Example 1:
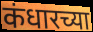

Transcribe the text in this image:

कंधारच्या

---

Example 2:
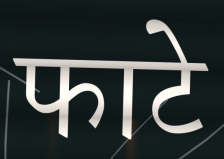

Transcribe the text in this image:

फाटे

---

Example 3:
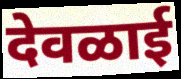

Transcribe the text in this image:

देवळाई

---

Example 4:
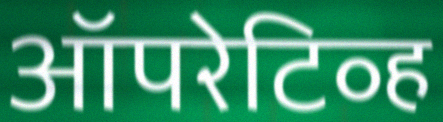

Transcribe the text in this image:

ऑपरेटिव्ह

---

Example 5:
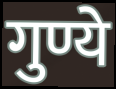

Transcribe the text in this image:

गुण्ये